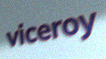
viceroy